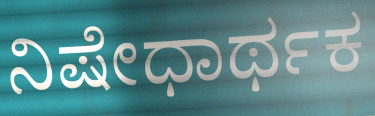
ನಿಷೇಧಾರ್ಥಕ